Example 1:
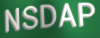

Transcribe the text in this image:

NSDAP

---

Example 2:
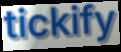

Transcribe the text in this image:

tickify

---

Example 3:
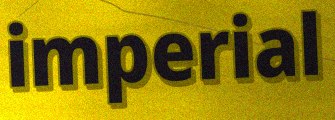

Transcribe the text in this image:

imperial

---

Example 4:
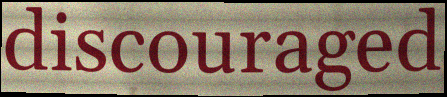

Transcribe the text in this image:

discouraged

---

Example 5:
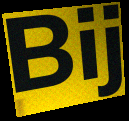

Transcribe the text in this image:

Bij